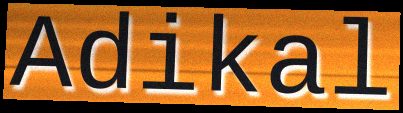
Adikal